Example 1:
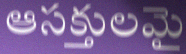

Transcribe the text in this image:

ఆసక్తులమై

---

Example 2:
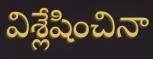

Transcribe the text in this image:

విశ్లేషించినా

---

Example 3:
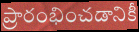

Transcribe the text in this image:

ప్రారంభించడానికీ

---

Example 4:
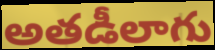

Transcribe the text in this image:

అతడీలాగు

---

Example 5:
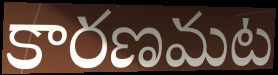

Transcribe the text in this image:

కారణమట